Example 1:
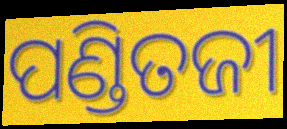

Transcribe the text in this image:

ପଣ୍ଡିତଜୀ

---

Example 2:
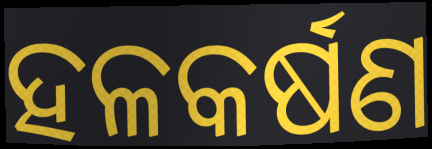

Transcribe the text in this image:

ହଳକର୍ଷଣ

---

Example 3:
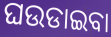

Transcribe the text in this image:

ଘଉଡାଇବା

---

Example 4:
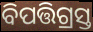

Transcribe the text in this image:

ବିପତ୍ତିଗ୍ରସ୍ତ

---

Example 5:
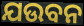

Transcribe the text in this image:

ଯଉବନ